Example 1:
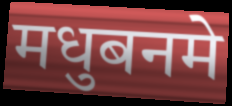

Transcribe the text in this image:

मधुबनमे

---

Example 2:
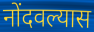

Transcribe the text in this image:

नोंदवल्यास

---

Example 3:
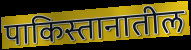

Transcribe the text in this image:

पाकिस्‍तानातील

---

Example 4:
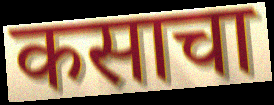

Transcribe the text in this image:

कसाचा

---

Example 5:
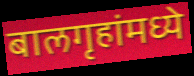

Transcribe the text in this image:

बालगृहांमध्ये